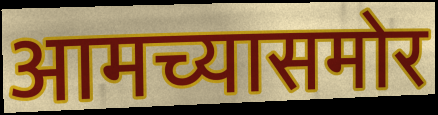
आमच्यासमोर